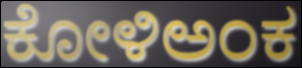
ಕೋಳಿಅಂಕ